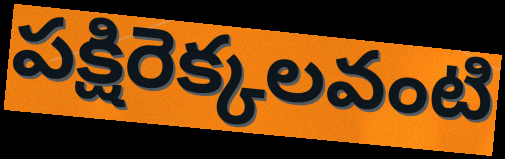
పక్షిరెక్కలవంటి